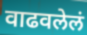
वाढवलेलं